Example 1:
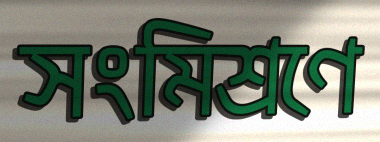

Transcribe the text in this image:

সংমিশ্রণে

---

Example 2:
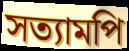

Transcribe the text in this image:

সত্যামপি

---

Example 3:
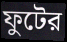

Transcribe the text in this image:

ফুটের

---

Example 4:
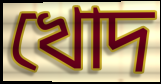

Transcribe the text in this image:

খোদ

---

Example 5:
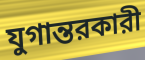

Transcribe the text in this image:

যুগান্তরকারী